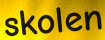
skolen